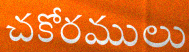
చకోరములు